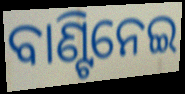
ବାଣ୍ଟିନେଇ